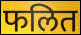
फलित